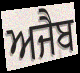
ਅਜੈਬ